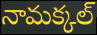
నామక్కల్